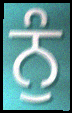
ਨੁੰ